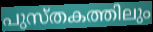
പുസ്തകത്തിലും